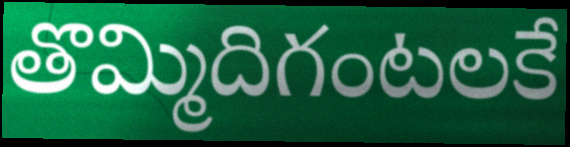
తొమ్మిదిగంటలకే